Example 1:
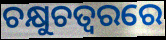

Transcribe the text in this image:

ଚକ୍ଷୁଚତ୍ୱରରେ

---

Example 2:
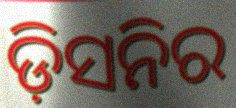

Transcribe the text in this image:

ଡ଼ିସନିର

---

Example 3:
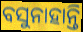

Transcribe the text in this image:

ବସୁନାହାନ୍ତି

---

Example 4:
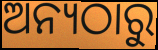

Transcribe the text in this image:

ଅନ୍ୟଠାରୁ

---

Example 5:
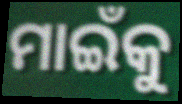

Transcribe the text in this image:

ମାଇଁକୁ